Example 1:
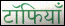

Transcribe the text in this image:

टॉफियाँ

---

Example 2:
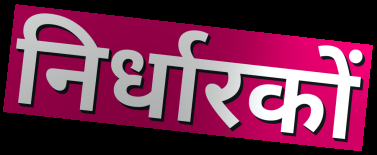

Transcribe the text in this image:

निर्धारकों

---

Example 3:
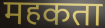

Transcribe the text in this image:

महकता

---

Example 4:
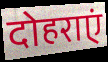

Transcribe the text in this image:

दोहराएं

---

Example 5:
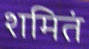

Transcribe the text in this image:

शमितं